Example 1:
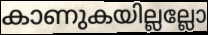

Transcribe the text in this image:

കാണുകയില്ലല്ലോ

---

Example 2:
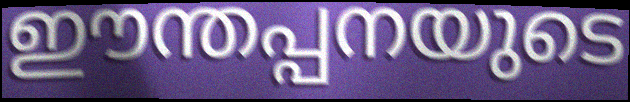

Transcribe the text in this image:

ഈന്തപ്പനയുടെ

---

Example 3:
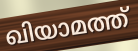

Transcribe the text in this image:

ഖിയാമത്ത്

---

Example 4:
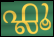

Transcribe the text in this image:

ഫ്ലൂ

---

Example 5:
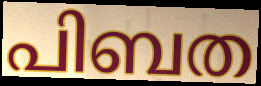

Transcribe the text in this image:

പിബത